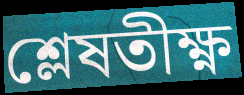
শ্লেষতীক্ষ্ণ